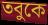
তবুকে